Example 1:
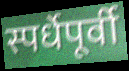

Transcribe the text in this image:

स्पर्धेपूर्वी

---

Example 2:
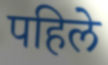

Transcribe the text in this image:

पहिले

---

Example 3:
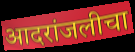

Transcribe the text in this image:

आदरांजलीचा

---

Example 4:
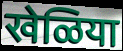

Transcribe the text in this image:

खेळिया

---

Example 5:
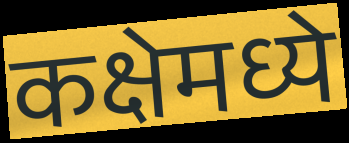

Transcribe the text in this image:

कक्षेमध्ये